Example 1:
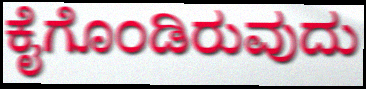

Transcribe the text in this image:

ಕೈಗೊಂಡಿರುವುದು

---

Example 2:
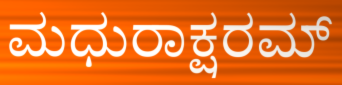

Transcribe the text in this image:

ಮಧುರಾಕ್ಷರಮ್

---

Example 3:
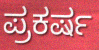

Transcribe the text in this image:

ಪ್ರಕರ್ಷ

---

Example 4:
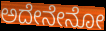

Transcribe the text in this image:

ಅದೇನೇನೋ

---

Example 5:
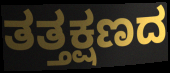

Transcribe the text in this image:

ತತ್ತಕ್ಷಣದ